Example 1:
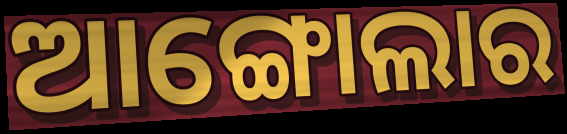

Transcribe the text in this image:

ଆଙ୍ଗୋଲାର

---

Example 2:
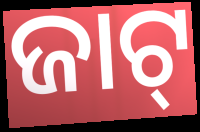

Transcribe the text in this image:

ଜାଟ୍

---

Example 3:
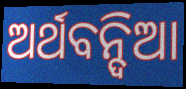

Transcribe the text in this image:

ଅର୍ଥବନ୍ଦିଆ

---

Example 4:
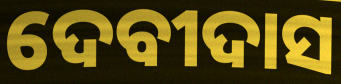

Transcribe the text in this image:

ଦେବୀଦାସ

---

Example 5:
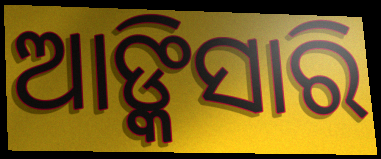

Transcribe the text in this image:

ଆଙ୍କିସାରି